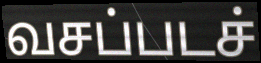
வசப்படச்